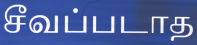
சீவப்படாத